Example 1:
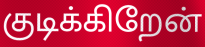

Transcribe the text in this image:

குடிக்கிறேன்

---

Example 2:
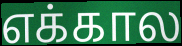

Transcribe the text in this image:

எக்கால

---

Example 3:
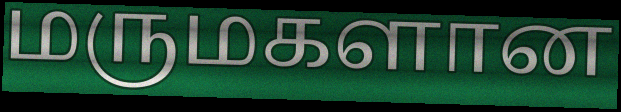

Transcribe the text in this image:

மருமகளான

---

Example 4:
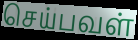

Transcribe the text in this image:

செய்பவள்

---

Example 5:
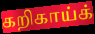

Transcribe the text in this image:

கறிகாய்க்